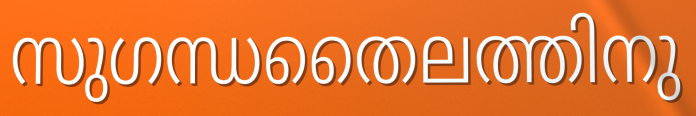
സുഗന്ധതൈലത്തിനു